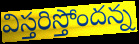
విస్తరిస్తోందన్న